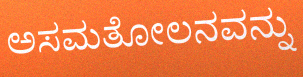
ಅಸಮತೋಲನವನ್ನು